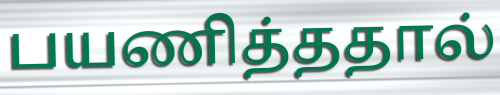
பயணித்ததால்